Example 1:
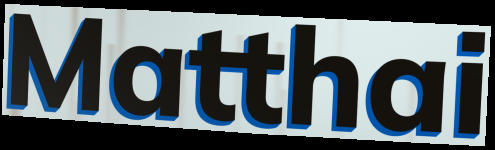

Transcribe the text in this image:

Matthai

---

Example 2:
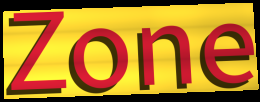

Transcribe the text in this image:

Zone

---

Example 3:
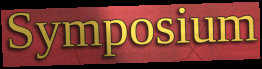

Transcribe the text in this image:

Symposium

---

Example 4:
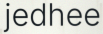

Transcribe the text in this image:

jedhee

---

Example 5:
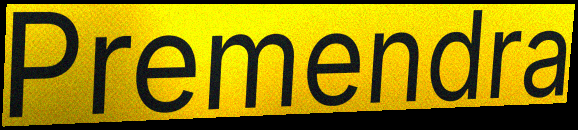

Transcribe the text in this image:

Premendra